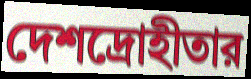
দেশদ্রোহীতার